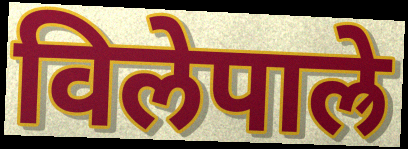
विलेपाल्रे